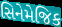
સિનેમેજિક